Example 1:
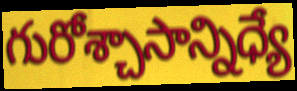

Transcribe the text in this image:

గురోశ్చాసాన్నిధ్యే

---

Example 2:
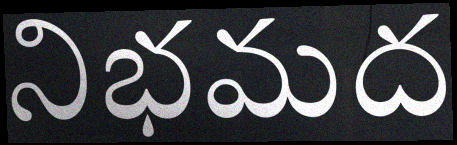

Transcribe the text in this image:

నిభమద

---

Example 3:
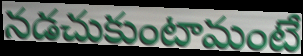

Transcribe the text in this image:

నడచుకుంటామంటే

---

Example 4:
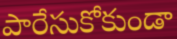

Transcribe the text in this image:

పారేసుకోకుండా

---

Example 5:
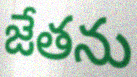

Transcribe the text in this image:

జేతను